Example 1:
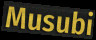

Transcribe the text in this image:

Musubi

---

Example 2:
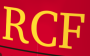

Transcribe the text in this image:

RCF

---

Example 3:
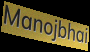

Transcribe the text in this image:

Manojbhai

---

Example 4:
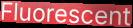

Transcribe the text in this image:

Fluorescent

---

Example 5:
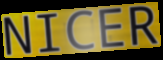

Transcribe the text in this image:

NICER